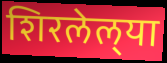
शिरलेल्या